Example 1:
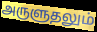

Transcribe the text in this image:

அருளுதலும்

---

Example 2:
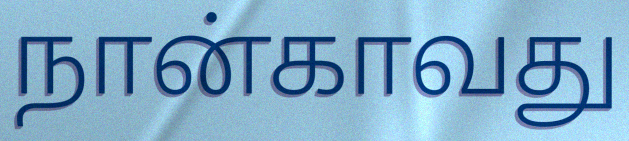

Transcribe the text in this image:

நான்காவது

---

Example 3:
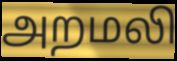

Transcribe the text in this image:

அறமலி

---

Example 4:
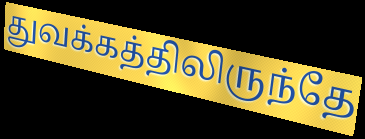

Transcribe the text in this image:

துவக்கத்திலிருந்தே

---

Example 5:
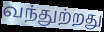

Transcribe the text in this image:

வந்துற்றது